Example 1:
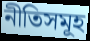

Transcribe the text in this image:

নীতিসমূহ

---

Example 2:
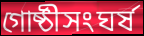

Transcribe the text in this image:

গোষ্ঠীসংঘৰ্ষ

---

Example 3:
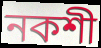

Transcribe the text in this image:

নকশী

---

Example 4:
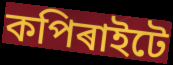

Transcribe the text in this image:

কপিৰাইটে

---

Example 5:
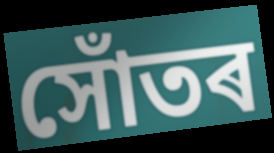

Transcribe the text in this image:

সোঁতৰ